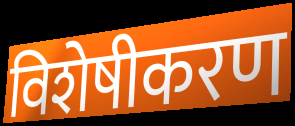
विशेषीकरण